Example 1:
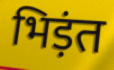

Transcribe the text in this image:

भिड़ंत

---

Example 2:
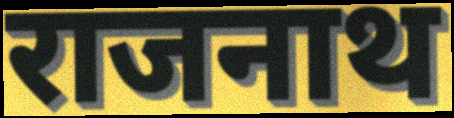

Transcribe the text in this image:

राजनाथ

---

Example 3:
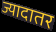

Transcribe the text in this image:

ज्यादातर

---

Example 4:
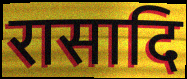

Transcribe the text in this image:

रासादि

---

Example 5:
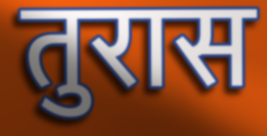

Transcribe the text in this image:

तुरास